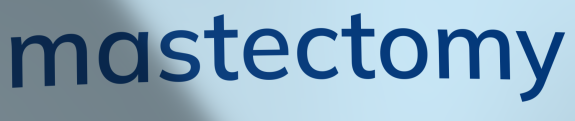
mastectomy